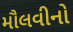
મૌલવીનો